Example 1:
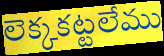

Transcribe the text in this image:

లెక్కకట్టలేము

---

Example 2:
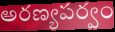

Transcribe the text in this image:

అరణ్యపర్వం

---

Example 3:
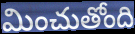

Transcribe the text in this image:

మించుతోంది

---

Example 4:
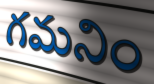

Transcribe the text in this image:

గమనిం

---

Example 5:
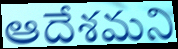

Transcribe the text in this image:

ఆదేశమని